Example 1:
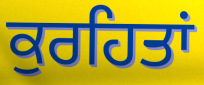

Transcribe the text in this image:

ਕੁਰਹਿਤਾਂ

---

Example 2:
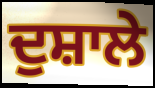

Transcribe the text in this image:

ਦੁਸ਼ਾਲੇ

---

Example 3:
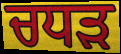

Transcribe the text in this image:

ਚਧੜ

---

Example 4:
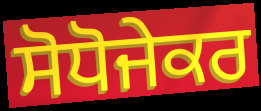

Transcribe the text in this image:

ਸੋਧੋਜੇਕਰ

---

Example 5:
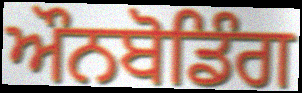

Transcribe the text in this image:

ਔਨਬੋਡਿੰਗ